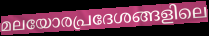
മലയോരപ്രദേശങ്ങളിലെ